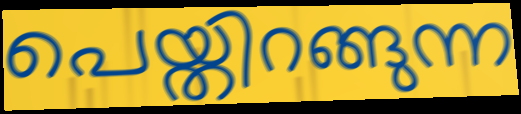
പെയ്തിറങ്ങുന്ന